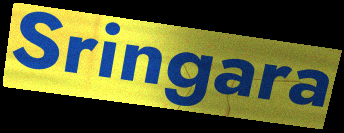
Sringara